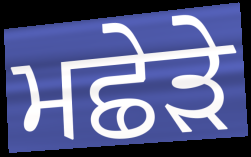
ਮਛੇੜੇ